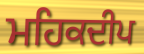
ਮਹਿਕਦੀਪ